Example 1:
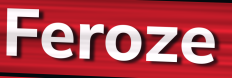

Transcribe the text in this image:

Feroze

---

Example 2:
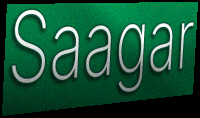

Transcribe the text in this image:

Saagar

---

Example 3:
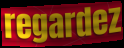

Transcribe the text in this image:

regardez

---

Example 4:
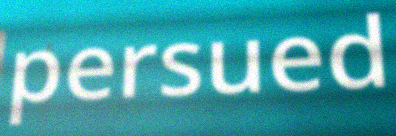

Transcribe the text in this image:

persued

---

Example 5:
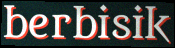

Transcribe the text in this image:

berbisik